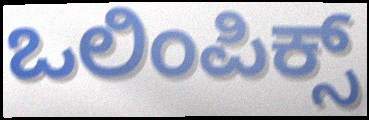
ಒಲಿಂಪಿಕ್ಸ್